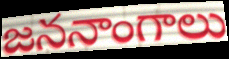
జననాంగాలు